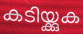
കടിയ്ക്കുക